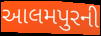
આલમપુરની